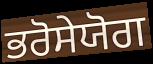
ਭਰੋਸੇਯੋਗ